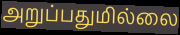
அறுப்பதுமில்லை